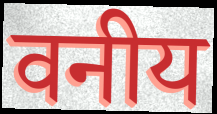
वनीय